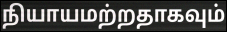
நியாயமற்றதாகவும்